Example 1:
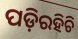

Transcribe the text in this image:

ପଡ଼ିରହିଚି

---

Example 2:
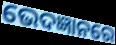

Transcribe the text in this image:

ଭେଦଜ୍ଞାନରେ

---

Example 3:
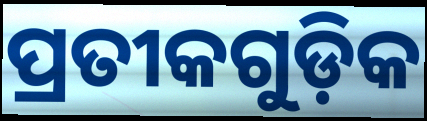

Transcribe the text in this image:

ପ୍ରତୀକଗୁଡ଼ିକ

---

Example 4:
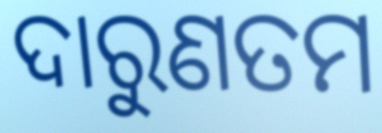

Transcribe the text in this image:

ଦାରୁଣତମ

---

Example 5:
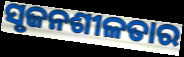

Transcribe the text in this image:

ସୃଜନଶୀଳତାର